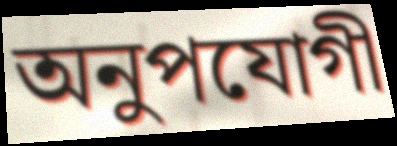
অনুপযোগী